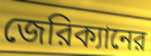
জেরিক্যানের